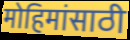
मोहिमांसाठी